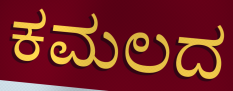
ಕಮಲದ